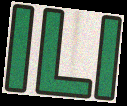
ILI